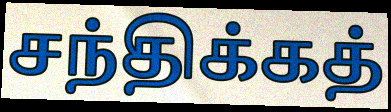
சந்திக்கத்